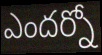
ఎందర్నో